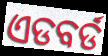
ଏଡବର୍ଡ